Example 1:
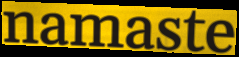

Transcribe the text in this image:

namaste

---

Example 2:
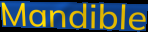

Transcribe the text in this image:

Mandible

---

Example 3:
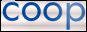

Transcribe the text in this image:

coop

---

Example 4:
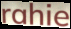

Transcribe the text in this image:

rahie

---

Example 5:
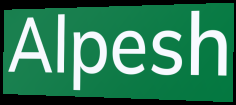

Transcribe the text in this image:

Alpesh